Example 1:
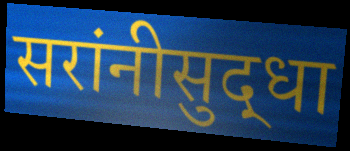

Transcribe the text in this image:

सरांनीसुद्धा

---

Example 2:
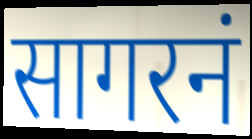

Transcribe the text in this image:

सागरनं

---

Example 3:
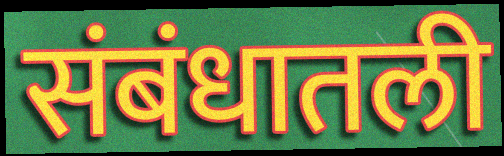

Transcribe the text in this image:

संबंधातली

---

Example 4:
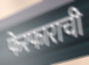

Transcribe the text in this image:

फेरफाराची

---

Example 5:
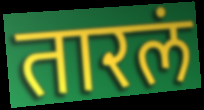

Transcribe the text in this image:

तारलं